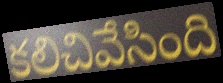
కలిచివేసింది